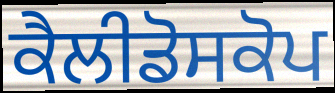
ਕੈਲੀਡੋਸਕੋਪ